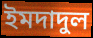
ইমদাদুল